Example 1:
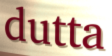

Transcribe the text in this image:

dutta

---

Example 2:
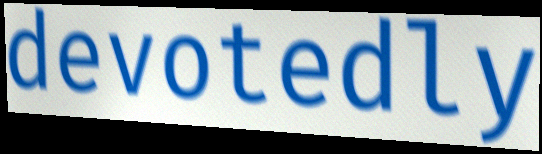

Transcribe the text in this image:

devotedly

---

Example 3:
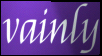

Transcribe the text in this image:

vainly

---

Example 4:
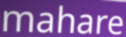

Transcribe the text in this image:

mahare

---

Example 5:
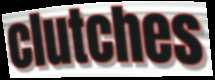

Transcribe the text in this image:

clutches